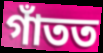
গাঁতত